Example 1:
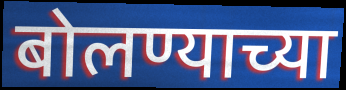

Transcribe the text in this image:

बोलण्याच्या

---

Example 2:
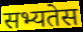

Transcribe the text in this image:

सभ्यतेस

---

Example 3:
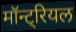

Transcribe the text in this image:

मॉन्ट्रियल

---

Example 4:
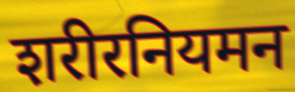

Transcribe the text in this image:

शरीरनियमन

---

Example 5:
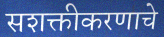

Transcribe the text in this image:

सशक्तीकरणाचे